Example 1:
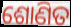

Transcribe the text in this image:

ଶୋଣିତ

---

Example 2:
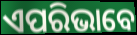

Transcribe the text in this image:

ଏପରିଭାବେ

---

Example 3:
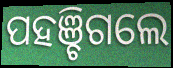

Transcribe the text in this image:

ପହଞ୍ଚିଗଲେ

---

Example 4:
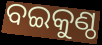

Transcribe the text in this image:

ବଇକୁଣ୍ଠ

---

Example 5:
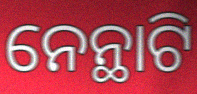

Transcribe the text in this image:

ନେନ୍ଥାଟି